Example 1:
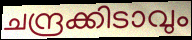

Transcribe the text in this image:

ചന്ദ്രക്കിടാവും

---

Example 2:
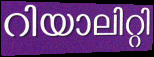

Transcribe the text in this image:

റിയാലിറ്റി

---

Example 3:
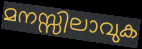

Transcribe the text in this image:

മനസ്സിലാവുക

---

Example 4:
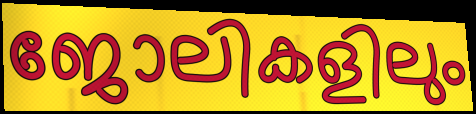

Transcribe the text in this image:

ജോലികളിലും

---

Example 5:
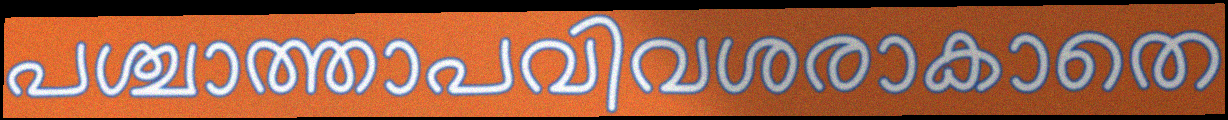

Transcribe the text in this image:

പശ്ചാത്താപവിവശരാകാതെ